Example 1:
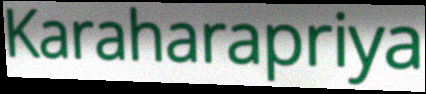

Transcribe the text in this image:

Karaharapriya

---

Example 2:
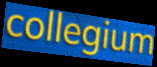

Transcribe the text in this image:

collegium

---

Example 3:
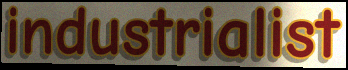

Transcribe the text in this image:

industrialist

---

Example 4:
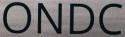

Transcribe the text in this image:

ONDC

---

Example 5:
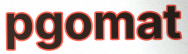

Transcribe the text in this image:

pgomat